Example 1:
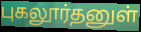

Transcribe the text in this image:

புகலூர்தனுள்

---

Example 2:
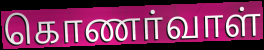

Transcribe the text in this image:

கொணர்வாள்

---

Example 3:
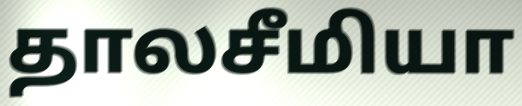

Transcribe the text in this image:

தாலசீமியா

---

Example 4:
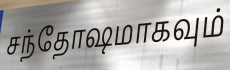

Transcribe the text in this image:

சந்தோஷமாகவும்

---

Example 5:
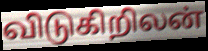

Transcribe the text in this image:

விடுகிறிலன்